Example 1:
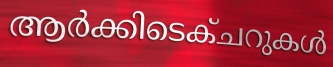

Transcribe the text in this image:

ആർക്കിടെക്ചറുകൾ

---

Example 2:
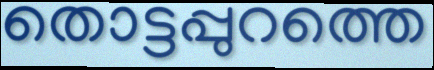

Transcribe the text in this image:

തൊട്ടപ്പുറത്തെ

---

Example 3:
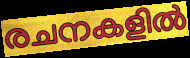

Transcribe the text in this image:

രചനകളിൽ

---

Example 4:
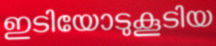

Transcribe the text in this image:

ഇടിയോടുകൂടിയ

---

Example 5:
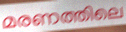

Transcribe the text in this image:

മരണത്തിലെ